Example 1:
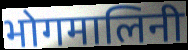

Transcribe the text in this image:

भोगमालिनी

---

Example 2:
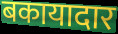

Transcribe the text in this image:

बकायादार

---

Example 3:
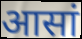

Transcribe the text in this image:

आसां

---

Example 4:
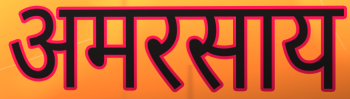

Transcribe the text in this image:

अमरसाय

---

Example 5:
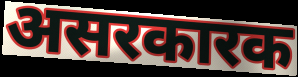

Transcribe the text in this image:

असरकारक